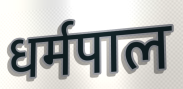
धर्मपाल